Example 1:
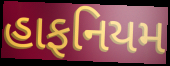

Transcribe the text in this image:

હાફનિયમ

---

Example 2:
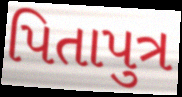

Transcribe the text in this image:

પિતાપુત્ર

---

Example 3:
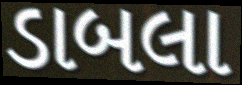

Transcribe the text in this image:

ડાબલા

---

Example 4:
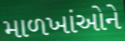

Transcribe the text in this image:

માળખાંઓને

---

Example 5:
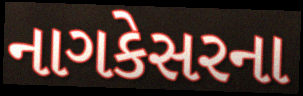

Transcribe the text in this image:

નાગકેસરના